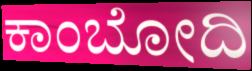
ಕಾಂಬೋದಿ